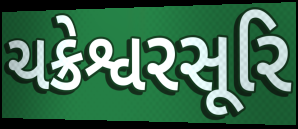
ચક્રેશ્વરસૂરિ